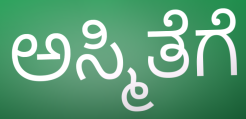
ಅಸ್ಮಿತೆಗೆ